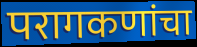
परागकणांचा